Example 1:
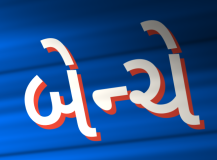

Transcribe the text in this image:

બેન્ચે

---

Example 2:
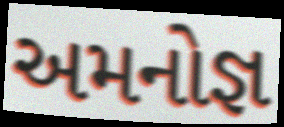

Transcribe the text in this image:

અમનોજ્ઞ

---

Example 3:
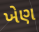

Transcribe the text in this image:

ખેણ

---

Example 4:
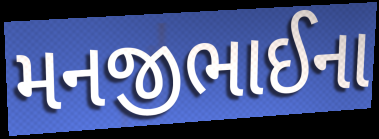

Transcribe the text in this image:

મનજીભાઈના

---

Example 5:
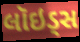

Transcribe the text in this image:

લૉઇડ્સ